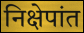
निक्षेपांत